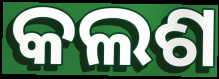
କଲଶ